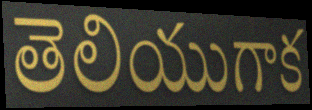
తెలియుగాక